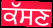
ਕੱਸਣ